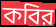
কবির